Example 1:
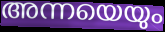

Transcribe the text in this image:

അന്നയെയും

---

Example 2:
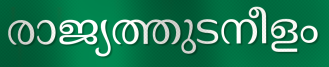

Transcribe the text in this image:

രാജ്യത്തുടനീളം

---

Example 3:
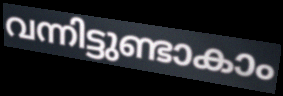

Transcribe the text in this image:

വന്നിട്ടുണ്ടാകാം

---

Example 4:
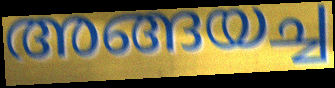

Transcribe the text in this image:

അങ്ങയച്ച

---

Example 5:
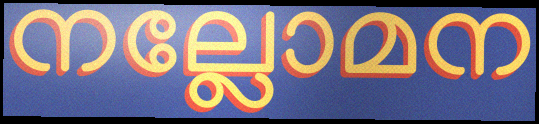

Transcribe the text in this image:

നല്ലോമന